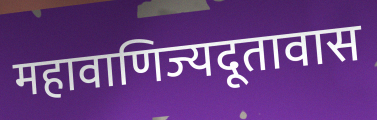
महावाणिज्यदूतावास